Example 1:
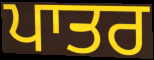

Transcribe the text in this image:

ਪਾਤਰ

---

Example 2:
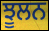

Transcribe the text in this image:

ਝੂਲਨ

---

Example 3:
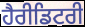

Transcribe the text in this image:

ਹੈਰੀਡਿਟਰੀ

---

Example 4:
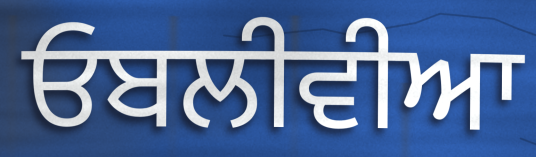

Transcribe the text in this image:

ਓਬਲੀਵੀਆ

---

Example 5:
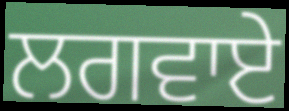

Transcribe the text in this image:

ਲਗਵਾਏ